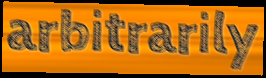
arbitrarily